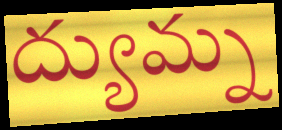
ద్యుమ్న